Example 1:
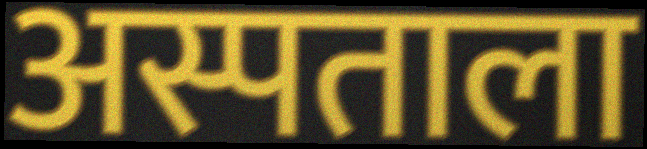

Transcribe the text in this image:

अस्पताला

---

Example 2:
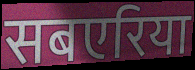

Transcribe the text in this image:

सबएरिया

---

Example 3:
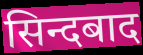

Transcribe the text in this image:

सिन्दबाद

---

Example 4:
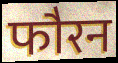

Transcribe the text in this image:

फौरन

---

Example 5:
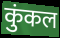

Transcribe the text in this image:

कुंकल